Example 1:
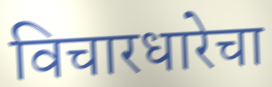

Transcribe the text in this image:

विचारधारेचा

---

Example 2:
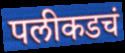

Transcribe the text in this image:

पलीकडचं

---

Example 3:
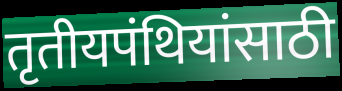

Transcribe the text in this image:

तृतीयपंथियांसाठी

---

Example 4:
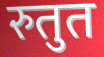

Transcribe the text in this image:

रुतुत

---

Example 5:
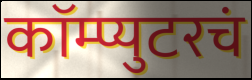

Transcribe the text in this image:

कॉम्प्युटरचं